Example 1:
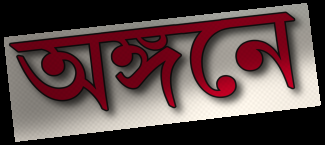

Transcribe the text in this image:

অঙ্গনে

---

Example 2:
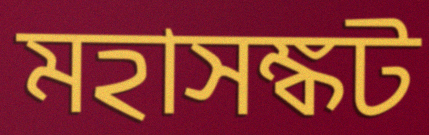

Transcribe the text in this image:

মহাসঙ্কট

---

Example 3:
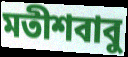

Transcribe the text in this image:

মতীশবাবু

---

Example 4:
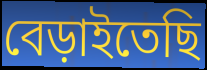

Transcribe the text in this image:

বেড়াইতেছি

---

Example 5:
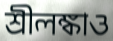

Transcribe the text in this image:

শ্রীলঙ্কাও